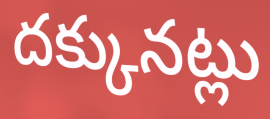
దక్కునట్లు